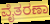
ವೈತರಣಾ